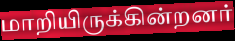
மாறியிருக்கின்றனர்